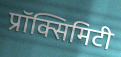
प्रॉक्सिमिटी